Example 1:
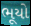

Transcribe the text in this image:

ભૂયો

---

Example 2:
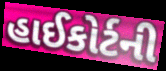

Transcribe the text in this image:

હાઈકોર્ટની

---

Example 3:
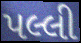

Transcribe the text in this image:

પલ્લી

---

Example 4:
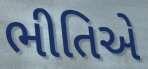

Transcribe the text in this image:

ભીતિએ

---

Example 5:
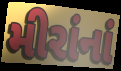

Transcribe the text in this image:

મીરાંનાં